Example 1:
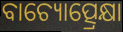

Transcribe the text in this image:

ବାଚ୍ୟୋତ୍ପ୍ରେକ୍ଷା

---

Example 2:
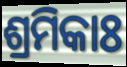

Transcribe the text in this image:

ଶ୍ରମିକାଃ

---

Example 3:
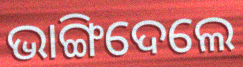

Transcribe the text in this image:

ଭାଙ୍ଗିଦେଲେ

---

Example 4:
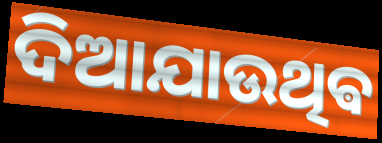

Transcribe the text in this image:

ଦିଆଯାଉଥିଵ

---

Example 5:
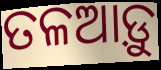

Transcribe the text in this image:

ତଳଆଡ଼ୁ